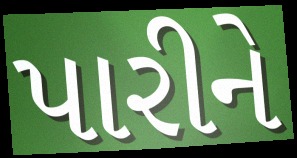
પારીને